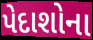
પેદાશોના